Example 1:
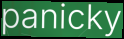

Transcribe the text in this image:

panicky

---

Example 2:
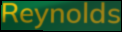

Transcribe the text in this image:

Reynolds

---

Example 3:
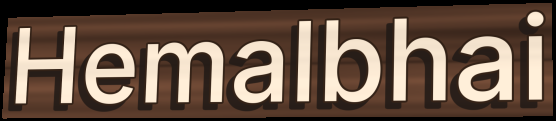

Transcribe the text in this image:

Hemalbhai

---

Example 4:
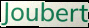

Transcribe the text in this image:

Joubert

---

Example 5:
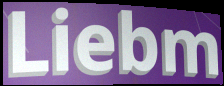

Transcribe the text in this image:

Liebm